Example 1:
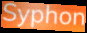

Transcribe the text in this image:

Syphon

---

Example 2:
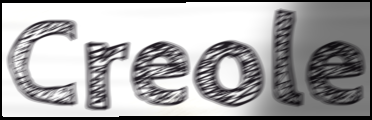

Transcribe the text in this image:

Creole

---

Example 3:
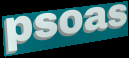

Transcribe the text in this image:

psoas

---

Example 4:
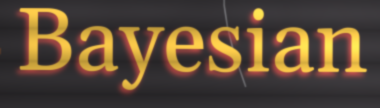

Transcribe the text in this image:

Bayesian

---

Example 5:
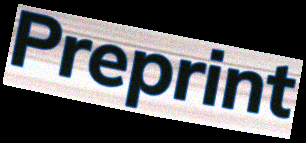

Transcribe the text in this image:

Preprint